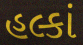
હલ્કાં